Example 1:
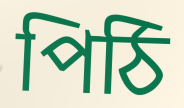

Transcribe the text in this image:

পিঠি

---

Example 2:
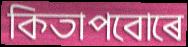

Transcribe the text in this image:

কিতাপবোৰে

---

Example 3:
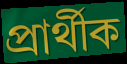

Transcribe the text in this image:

প্ৰাৰ্থীক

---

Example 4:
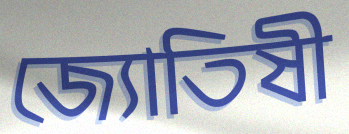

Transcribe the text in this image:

জ্যোতিষী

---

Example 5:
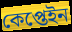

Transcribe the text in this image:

কেপ্তেইন